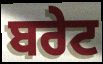
ਬਰੇਟ